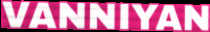
VANNIYAN